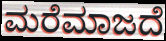
ಮರೆಮಾಜದೆ